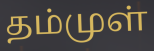
தம்முள்